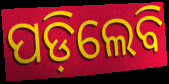
ପଡ଼ିଲେବି